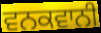
ਵਨਕਵਾਨੀ